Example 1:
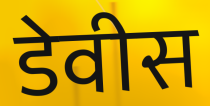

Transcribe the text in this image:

डेवीस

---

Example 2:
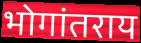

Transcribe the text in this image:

भोगांतराय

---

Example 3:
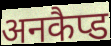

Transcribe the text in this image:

अनकैप्ड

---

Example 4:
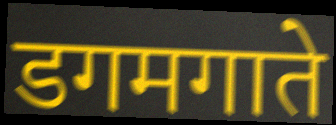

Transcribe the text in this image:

डगमगाते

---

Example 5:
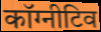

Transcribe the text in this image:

कॉग्‍नीटिव